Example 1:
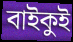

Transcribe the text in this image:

বাইকুই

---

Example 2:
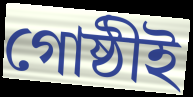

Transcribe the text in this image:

গোষ্ঠীই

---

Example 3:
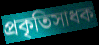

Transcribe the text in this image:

প্রকৃতিসাধক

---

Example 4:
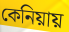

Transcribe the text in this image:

কেনিয়ায়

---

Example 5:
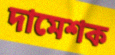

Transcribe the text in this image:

দামেশক